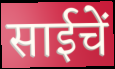
साईचें